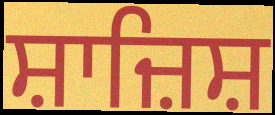
ਸ਼ਾਜ਼ਿਸ਼